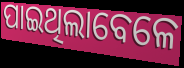
ପାଇଥିଲାବେଳେ